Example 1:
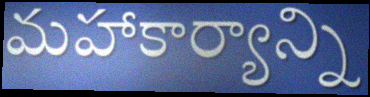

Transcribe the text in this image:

మహాకార్యాన్ని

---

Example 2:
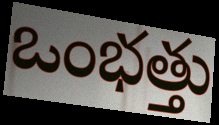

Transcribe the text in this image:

ఒంభత్తు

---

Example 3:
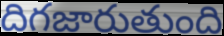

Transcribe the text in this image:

దిగజారుతుంది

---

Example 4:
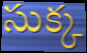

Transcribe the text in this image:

సుక్క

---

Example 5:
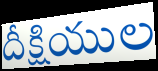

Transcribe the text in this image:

దీక్షియుల